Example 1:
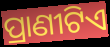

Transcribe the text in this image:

ପ୍ରାଣୀଟିଏ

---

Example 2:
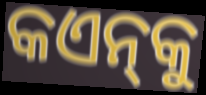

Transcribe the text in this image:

କଏନ୍‌କୁ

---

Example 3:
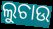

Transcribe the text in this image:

ଲୁଚାଉ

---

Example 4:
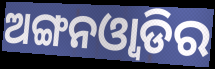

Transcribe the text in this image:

ଅଙ୍ଗନଓ୍ବାଡିର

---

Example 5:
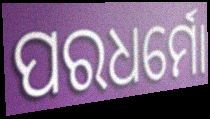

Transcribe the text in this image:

ପରଧର୍ମୋ